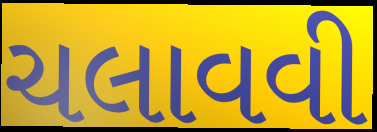
ચલાવવી